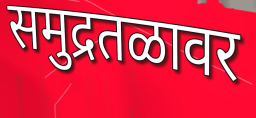
समुद्रतळावर